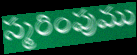
స్మరింపుము